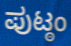
ಪುಟ್ಠಂ